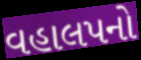
વહાલપનો